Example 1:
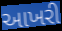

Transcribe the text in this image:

આખરી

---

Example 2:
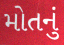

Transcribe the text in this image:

મોતનું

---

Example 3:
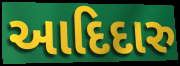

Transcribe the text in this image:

આદિદારુ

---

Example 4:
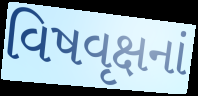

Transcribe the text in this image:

વિષવૃક્ષનાં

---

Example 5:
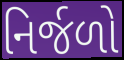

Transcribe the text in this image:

નિર્જળો